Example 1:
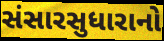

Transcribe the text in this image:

સંસારસુધારાનો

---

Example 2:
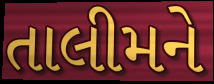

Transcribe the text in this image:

તાલીમને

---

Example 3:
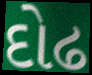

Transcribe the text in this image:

દોઢ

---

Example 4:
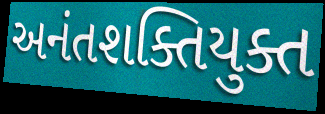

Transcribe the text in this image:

અનંતશક્તિયુક્ત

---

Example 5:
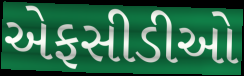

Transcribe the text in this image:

એફસીડીઓ